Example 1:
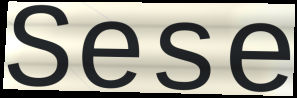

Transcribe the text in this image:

Sese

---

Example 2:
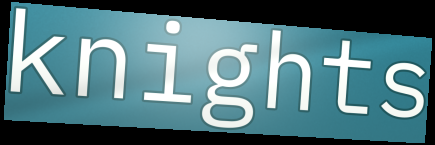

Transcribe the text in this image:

knights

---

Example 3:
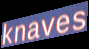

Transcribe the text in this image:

knaves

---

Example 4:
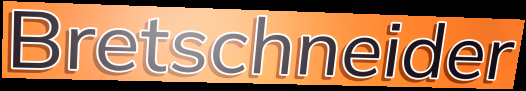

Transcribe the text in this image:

Bretschneider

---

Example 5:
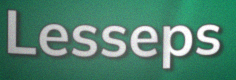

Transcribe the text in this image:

Lesseps